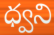
ధ్వని